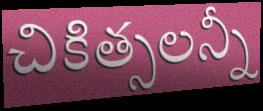
చికిత్సలన్నీ